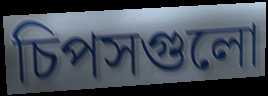
চিপসগুলো